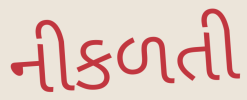
નીકળતી